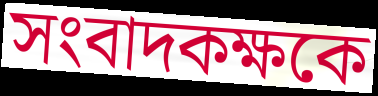
সংবাদকক্ষকে